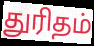
துரிதம்